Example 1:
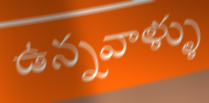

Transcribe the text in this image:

ఉన్నవాళ్ళు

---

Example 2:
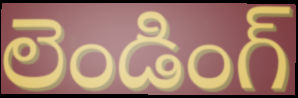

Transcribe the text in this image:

లెండింగ్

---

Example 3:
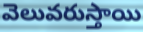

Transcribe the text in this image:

వెలువరుస్తాయి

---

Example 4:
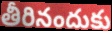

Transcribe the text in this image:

తీరినందుకు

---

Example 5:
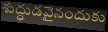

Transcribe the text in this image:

శుద్ధుడవైనందుకు